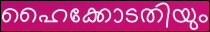
ഹൈക്കോടതിയും